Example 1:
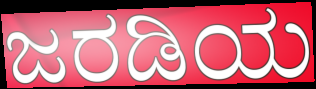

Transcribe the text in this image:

ಜರಡಿಯ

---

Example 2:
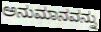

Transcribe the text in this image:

ಅನುಮಾನವನ್ನು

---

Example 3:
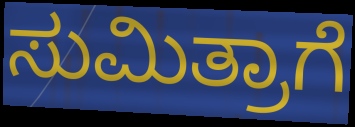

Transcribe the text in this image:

ಸುಮಿತ್ರಾಗೆ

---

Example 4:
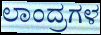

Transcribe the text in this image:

ಲಾಂದ್ರಗಳ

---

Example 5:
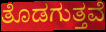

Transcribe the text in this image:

ತೊಡಗುತ್ತವೆ